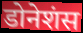
डोनेशंस